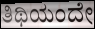
ತಿಥಿಯಂದೇ